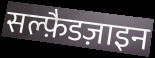
सल्फ़ैडज़ाइन